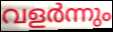
വളർന്നും